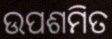
ଉପଶମିତ